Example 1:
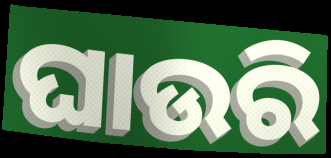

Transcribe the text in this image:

ଘାଉରି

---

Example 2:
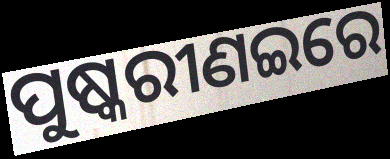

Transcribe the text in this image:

ପୁଷ୍କରୀଣଇରେ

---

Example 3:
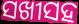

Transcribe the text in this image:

ସଖୀସହ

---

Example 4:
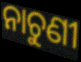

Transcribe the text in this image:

ନାଚୁଣୀ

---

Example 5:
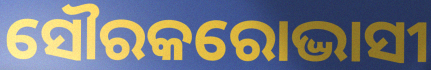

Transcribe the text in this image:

ସୌରକରୋଦ୍ଭାସୀ